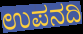
ಉಪನದಿ